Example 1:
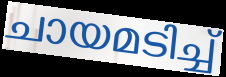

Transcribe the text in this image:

ചായമടിച്ച്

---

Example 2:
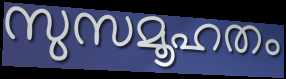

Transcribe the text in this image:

സുസമൂഹതം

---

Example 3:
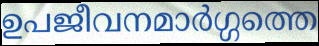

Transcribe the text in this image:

ഉപജീവനമാർഗ്ഗത്തെ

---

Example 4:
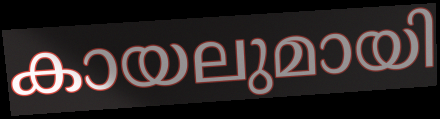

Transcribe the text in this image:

കായലുമായി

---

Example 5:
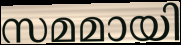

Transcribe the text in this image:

സമമായി